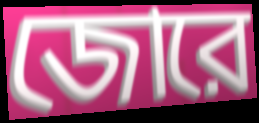
জোরে